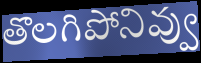
తొలగిపోనివ్వు